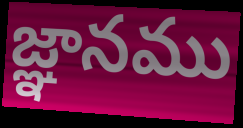
జ్ఞానము